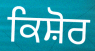
ਕਿਸ਼ੋਰ